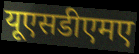
यूएसडीएमए